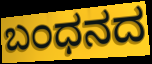
ಬಂಧನದ